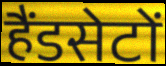
हैंडसेटों